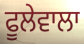
ਫੂਲੇਵਾਲਾ